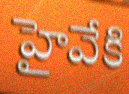
హైవేకి